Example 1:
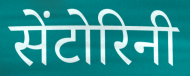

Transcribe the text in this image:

सेंटोरिनी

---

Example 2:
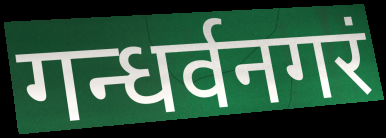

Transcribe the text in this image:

गन्धर्वनगरं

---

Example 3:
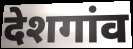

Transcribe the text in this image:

देशगांव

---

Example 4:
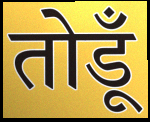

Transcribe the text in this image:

तोडूँ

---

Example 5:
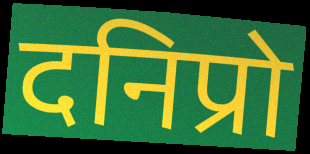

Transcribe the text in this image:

दनिप्रो